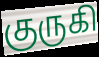
குருகி